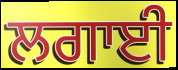
ਲਗਾਈ